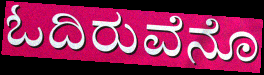
ಓದಿರುವೆನೊ